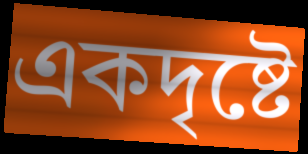
একদৃষ্টে